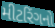
મીટરિંગનો